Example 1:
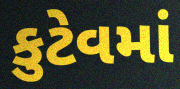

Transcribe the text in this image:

કુટેવમાં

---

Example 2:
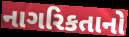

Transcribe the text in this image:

નાગરિકતાનો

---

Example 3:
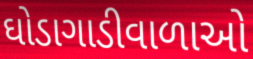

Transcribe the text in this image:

ઘોડાગાડીવાળાઓ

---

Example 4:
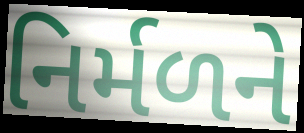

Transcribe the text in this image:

નિર્મળને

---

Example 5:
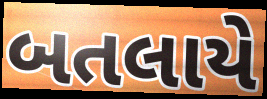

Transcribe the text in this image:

બતલાયે